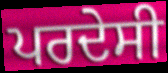
ਪਰਦੇਸੀ